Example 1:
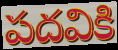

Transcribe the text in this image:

పదవికి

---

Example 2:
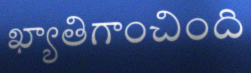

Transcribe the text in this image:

ఖ్యాతిగాంచింది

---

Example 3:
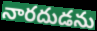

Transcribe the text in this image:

నారదుడను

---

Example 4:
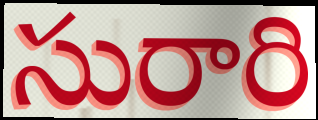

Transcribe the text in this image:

సురారి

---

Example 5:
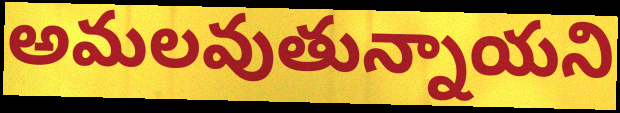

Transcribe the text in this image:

అమలవుతున్నాయని